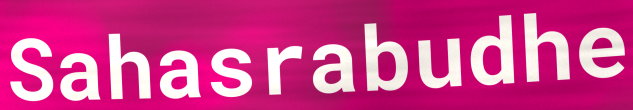
Sahasrabudhe